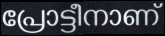
പ്രോട്ടീനാണ്